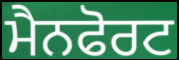
ਮੈਨਫੋਰਟ